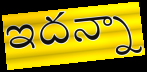
ఇదన్నా